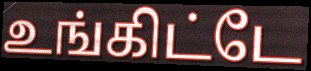
உங்கிட்டே